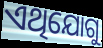
ଏଥିଯୋଗୁ